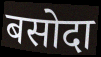
बसोदा